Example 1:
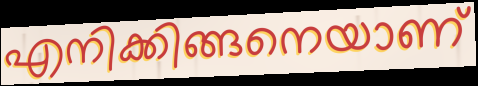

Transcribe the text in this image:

എനിക്കിങ്ങനെയാണ്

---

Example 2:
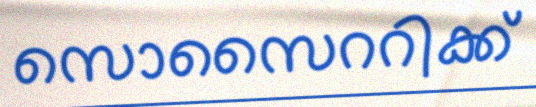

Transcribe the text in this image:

സൊസൈററിക്ക്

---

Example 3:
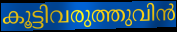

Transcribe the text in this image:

കൂട്ടിവരുത്തുവിൻ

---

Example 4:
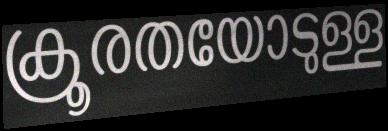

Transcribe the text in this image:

ക്രൂരതയോടുള്ള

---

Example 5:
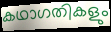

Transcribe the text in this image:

കഥാഗതികളും